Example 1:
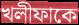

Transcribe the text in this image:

খলীফাকে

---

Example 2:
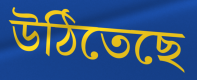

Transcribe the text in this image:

উঠিতেছে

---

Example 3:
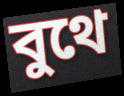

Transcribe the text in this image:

বুথে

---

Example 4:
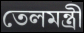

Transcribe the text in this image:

তেলমন্ত্রী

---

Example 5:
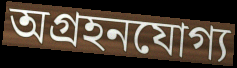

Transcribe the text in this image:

অগ্রহনযোগ্য